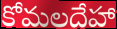
కోమలదేహా